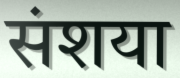
संशया